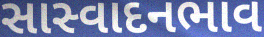
સાસ્વાદનભાવ